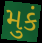
મુકં